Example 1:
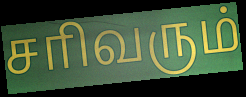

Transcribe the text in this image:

சரிவரும்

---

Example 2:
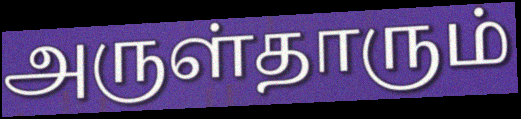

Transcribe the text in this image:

அருள்தாரும்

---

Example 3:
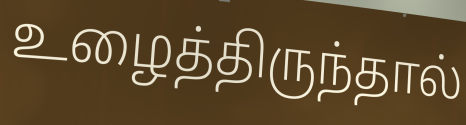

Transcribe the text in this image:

உழைத்திருந்தால்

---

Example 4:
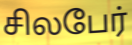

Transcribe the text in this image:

சிலபேர்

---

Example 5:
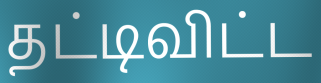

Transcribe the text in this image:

தட்டிவிட்ட